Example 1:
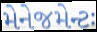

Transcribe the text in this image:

મેનેજમેન્ટઃ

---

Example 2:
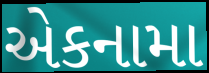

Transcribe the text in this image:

એકનામા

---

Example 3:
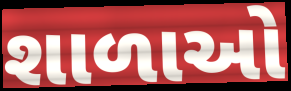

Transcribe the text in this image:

શાળાઓ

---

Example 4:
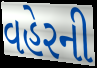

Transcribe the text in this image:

વહેરની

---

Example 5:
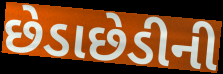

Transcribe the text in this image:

છેડાછેડીની